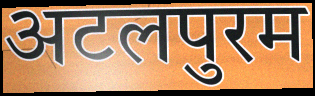
अटलपुरम